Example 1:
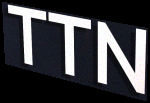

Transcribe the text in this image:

TTN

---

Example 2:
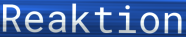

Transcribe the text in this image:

Reaktion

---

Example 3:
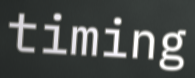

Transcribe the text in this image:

timing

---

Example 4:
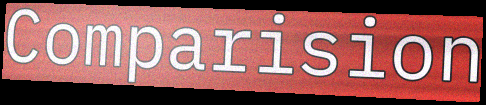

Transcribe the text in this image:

Comparision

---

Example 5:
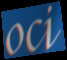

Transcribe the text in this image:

oci